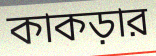
কাকড়ার